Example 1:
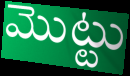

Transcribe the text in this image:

మొట్టు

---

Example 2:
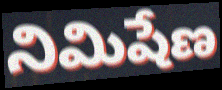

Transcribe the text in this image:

నిమిషేణ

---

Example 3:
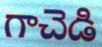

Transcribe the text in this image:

గాచెడి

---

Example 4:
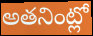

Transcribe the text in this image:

అతనింట్లో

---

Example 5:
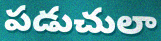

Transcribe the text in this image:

పడుచులా